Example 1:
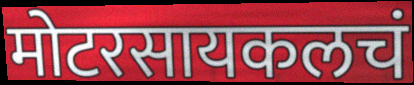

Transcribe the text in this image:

मोटरसायकलचं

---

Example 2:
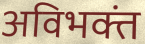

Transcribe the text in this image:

अविभक्तं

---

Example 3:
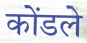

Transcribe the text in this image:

कोंडले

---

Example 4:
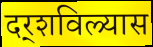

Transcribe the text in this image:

दर्शविल्यास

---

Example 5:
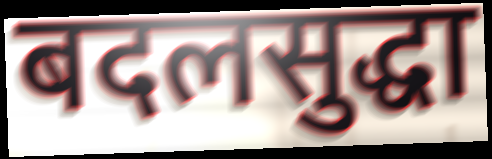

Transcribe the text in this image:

बदलसुद्धा